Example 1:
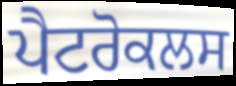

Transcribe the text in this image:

ਪੈਟਰੋਕਲਸ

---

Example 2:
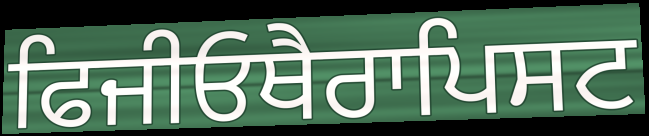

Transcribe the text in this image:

ਫਿਜੀਓਥੈਰਾਪਿਸਟ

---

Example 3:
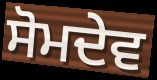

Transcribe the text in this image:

ਸੋਮਦੇਵ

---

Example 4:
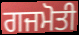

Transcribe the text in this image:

ਗਜਮੋਤੀ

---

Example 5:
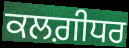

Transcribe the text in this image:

ਕਲਗ਼ੀਧਰ